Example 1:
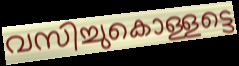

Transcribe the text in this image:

വസിച്ചുകൊള്ളട്ടെ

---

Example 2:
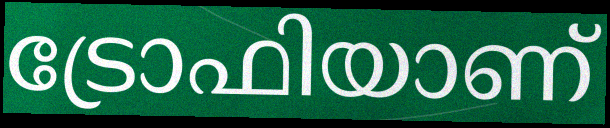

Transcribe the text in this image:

ട്രോഫിയാണ്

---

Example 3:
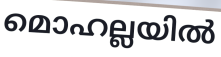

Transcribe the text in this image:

മൊഹല്ലയിൽ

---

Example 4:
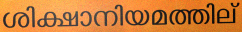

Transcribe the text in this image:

ശിക്ഷാനിയമത്തില്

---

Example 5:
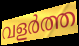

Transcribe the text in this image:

വളർത്ത